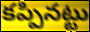
కప్పినట్టు